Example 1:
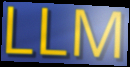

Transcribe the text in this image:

LLM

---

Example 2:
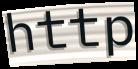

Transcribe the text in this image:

http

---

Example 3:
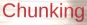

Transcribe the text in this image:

Chunking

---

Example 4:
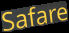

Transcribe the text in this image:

Safare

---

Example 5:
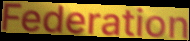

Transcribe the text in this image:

Federation